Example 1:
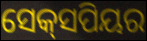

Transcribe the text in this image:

ସେକ୍‌ସପିୟର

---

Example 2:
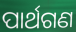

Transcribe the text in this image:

ପାର୍ଥଗଣ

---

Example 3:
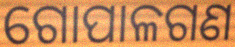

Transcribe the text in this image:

ଗୋପାଳଗଣ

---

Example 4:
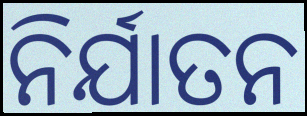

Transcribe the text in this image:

ନିର୍ଯାତନ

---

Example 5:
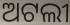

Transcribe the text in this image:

ଅଟଲୀ